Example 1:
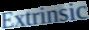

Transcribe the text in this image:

Extrinsic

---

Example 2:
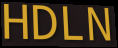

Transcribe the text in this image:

HDLN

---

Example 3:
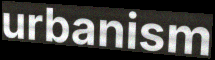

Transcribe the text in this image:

urbanism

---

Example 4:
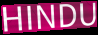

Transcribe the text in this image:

HINDU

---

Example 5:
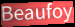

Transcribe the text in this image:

Beaufoy